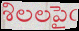
శిలలపైఁ